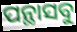
ପନ୍ଥାସବୁ